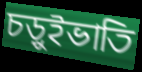
চড়ুইভাতি